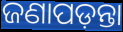
ଜଣାପଡ଼ନ୍ତା